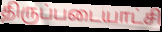
திருப்படையாட்சி